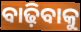
ବାଢ଼ିବାକୁ